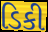
ડિકી